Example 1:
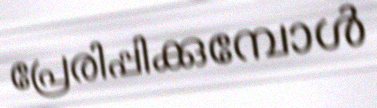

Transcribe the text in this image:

പ്രേരിപ്പിക്കുമ്പോൾ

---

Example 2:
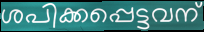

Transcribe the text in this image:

ശപിക്കപ്പെട്ടവന്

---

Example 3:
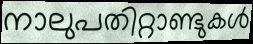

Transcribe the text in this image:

നാലുപതിറ്റാണ്ടുകൾ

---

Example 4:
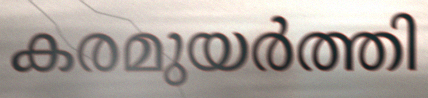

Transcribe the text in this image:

കരമുയർത്തി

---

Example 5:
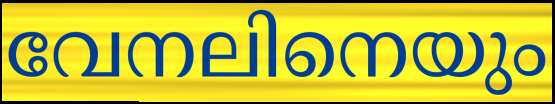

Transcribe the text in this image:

വേനലിനെയും